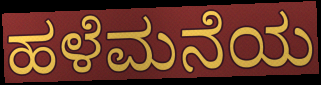
ಹಳೆಮನೆಯ